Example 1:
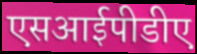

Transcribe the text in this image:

एसआईपीडीए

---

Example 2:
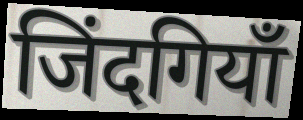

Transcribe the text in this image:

जिंदगियाँ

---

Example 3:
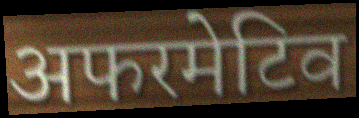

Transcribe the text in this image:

अफरमेटिव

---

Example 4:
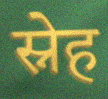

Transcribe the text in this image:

स्नेह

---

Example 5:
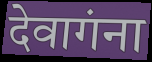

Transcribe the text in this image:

देवागंना